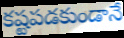
కష్టపడకుండానే